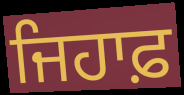
ਜਿਹਾਫ਼